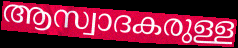
ആസ്വാദകരുള്ള